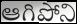
ఆగిపోని